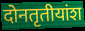
दोनतृतीयांश